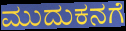
ಮುದುಕನಗೆ